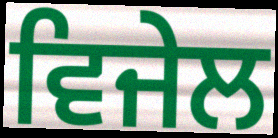
ਵਿਜੇਲ